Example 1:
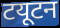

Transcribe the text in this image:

टयूटन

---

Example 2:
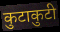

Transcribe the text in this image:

कुटाकुटी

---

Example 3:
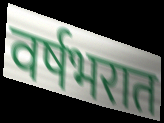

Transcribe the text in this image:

वर्षभरात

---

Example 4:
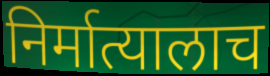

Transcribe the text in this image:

निर्मात्यालाच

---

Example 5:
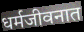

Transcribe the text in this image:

धर्मजीवनात